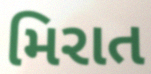
મિરાત